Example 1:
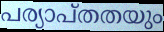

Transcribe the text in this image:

പര്യാപ്തതയും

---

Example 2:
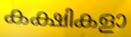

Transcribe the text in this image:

കക്ഷികളാ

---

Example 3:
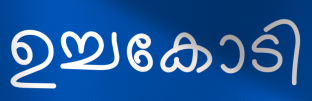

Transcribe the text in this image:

ഉച്ചകോടി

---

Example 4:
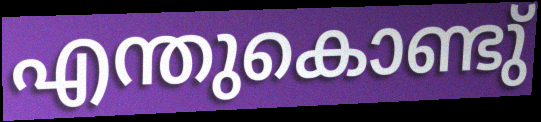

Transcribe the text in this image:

എന്തുകൊണ്ടു്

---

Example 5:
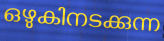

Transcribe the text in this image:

ഒഴുകിനടക്കുന്ന